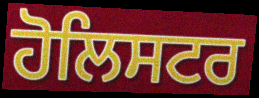
ਹੋਲਿਸਟਰ